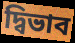
দ্বিভাব